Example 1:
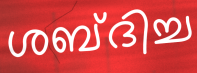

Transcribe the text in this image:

ശബ്ദിച്ച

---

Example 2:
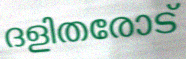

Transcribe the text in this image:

ദളിതരോട്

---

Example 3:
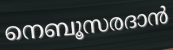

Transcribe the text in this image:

നെബൂസരദാൻ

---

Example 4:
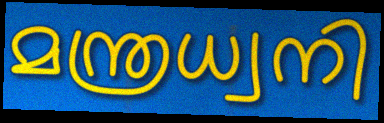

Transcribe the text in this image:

മന്ത്രധ്വനി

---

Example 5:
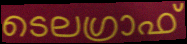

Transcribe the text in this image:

ടെലഗ്രാഫ്